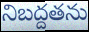
నిబద్దతను